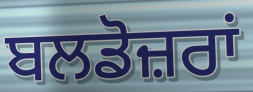
ਬਲਡੋਜ਼ਰਾਂ